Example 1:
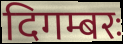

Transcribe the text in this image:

दिगम्बरः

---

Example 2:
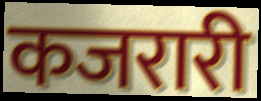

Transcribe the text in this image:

कजरारी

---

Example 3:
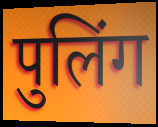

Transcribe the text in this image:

पुलिंग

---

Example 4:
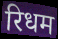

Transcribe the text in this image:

रिधम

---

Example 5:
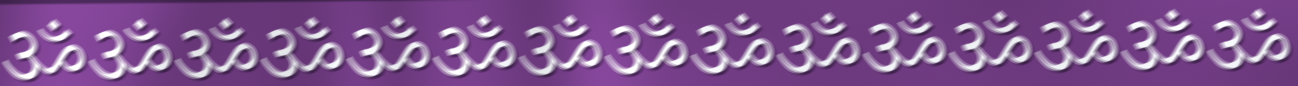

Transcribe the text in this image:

ॐॐॐॐॐॐॐॐॐॐॐॐॐॐॐ